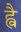
ह्वै